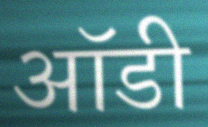
ऑडी